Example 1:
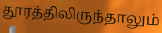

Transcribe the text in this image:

தூரத்திலிருந்தாலும்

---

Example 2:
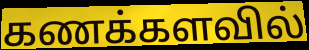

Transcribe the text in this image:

கணக்களவில்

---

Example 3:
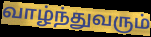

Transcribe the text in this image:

வாழ்ந்துவரும்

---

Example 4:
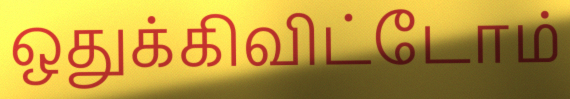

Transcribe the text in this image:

ஒதுக்கிவிட்டோம்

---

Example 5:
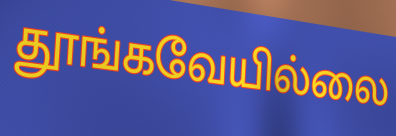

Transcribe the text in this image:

தூங்கவேயில்லை